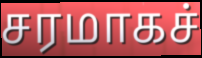
சரமாகச்